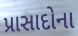
પ્રાસાદોના